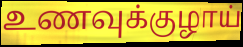
உணவுக்குழாய்